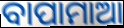
ବାପାମାଆ